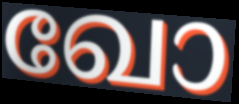
ഖോ